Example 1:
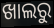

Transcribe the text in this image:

ଖାଲରୁ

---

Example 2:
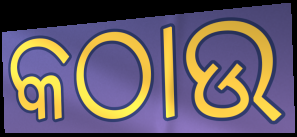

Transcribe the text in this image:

କଠାଉ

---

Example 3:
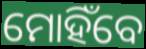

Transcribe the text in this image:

ମୋହିଁବେ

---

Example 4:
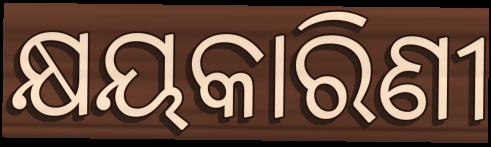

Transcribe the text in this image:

କ୍ଷୟକାରିଣୀ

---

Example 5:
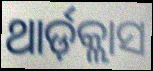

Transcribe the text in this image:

ଥାର୍ଡ଼କ୍ଲାସ